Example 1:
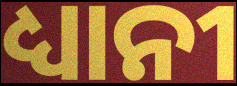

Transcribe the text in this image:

ଧ୍ୟାନୀ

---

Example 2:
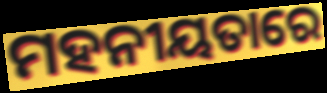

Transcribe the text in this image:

ମହନୀୟତାରେ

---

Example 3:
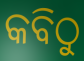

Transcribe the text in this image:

କବିଠୁ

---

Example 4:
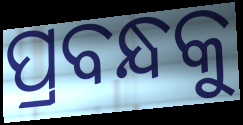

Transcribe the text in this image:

ପ୍ରବନ୍ଧକୁ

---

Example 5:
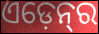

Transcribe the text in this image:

ଏଡ଼େନ୍‍ର